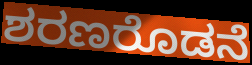
ಶರಣರೊಡನೆ